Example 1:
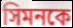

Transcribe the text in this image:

সিমনকে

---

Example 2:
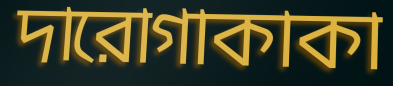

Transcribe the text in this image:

দারোগাকাকা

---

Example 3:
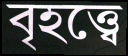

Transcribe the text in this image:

বৃহত্ত্বে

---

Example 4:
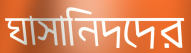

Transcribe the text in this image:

ঘাসানিদদের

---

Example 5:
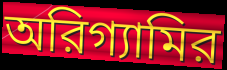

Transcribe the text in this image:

অরিগ্যামির